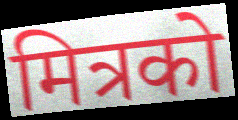
मित्रको